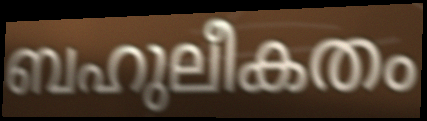
ബഹുലീകതം